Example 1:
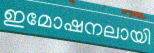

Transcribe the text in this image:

ഇമോഷനലായി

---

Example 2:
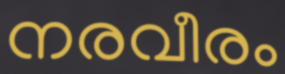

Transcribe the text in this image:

നരവീരം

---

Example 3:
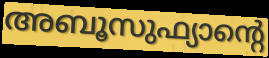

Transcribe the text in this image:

അബൂസുഫ്യാന്റെ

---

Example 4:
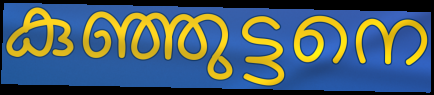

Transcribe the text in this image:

കുഞ്ഞുട്ടനെ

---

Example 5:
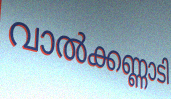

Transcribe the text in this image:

വാൽക്കണ്ണാടി